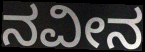
ನವೀನ